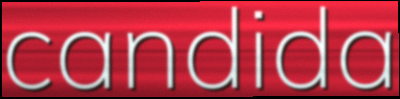
candida